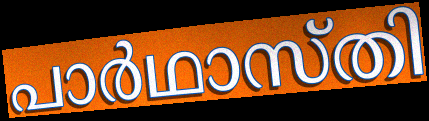
പാർഥാസ്തി